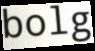
bolg